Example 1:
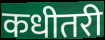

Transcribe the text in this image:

कधीतरी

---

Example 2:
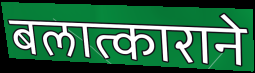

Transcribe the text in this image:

बलात्काराने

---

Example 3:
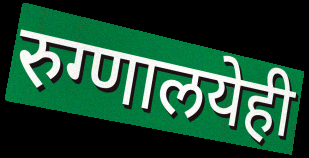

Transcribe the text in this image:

रुग्णालयेही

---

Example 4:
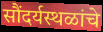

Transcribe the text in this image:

सौंदर्यस्थळांचे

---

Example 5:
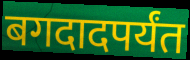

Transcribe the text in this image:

बगदादपर्यंत